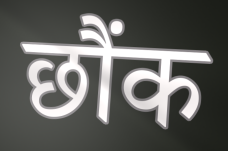
छौंक